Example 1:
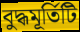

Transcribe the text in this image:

বুদ্ধমূর্তিটি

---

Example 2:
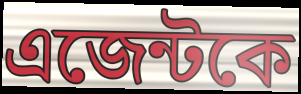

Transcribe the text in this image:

এজেন্টকে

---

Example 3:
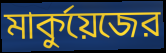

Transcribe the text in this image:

মার্কুয়েজের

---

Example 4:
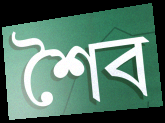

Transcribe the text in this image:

শৈব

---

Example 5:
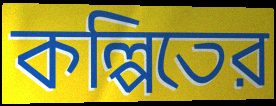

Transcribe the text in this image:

কল্পিতের